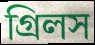
গ্রিলস